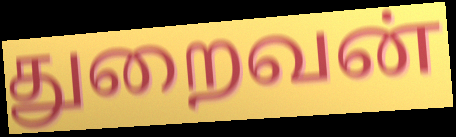
துறைவன்